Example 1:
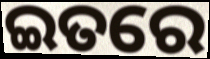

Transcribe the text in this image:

ଇତରେ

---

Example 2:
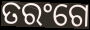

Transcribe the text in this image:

ତରଂଗେ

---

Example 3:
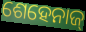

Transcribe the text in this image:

ଶେହେନାଜ୍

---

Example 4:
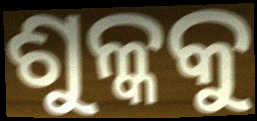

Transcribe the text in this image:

ଶୁଳ୍କକୁ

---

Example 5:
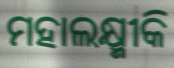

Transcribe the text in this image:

ମହାଲକ୍ଷ୍ମୀକି